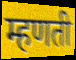
म्हणती